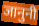
जानुनी